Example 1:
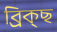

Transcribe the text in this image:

ব্ৰিক্‌ছ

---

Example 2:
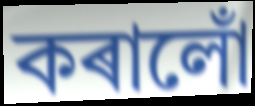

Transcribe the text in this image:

কৰালোঁ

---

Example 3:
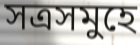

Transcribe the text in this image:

সত্ৰসমুহে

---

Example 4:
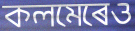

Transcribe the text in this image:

কলমেৰেও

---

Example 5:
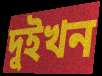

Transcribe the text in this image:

দুইখন